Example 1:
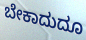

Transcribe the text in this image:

ಬೇಕಾದುದೂ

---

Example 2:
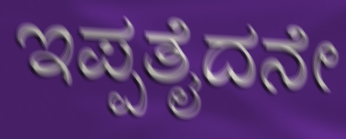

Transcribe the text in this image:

ಇಪ್ಪತೈದನೇ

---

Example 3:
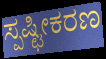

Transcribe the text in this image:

ಸ್ಪಷ್ಟೀಕರಣ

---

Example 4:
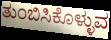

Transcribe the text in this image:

ತುಂಬಿಸಿಕೊಳ್ಳುವ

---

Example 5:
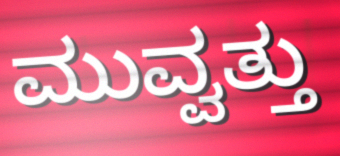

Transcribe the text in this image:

ಮುವ್ವತ್ತು